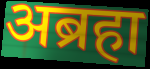
अब्रहा